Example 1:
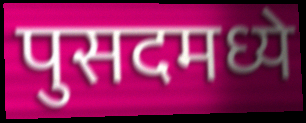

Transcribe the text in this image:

पुसदमध्ये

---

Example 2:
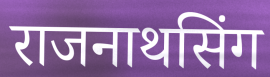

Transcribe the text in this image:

राजनाथसिंग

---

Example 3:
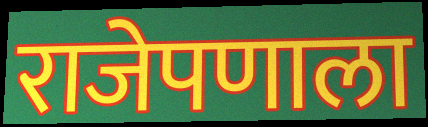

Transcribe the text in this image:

राजेपणाला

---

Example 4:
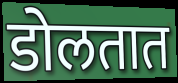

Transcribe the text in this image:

डोलतात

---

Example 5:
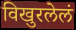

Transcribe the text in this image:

विखुरलेलं